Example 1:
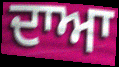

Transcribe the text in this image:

ਦਾਆ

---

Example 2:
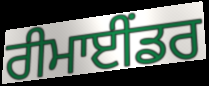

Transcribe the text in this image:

ਰੀਮਾਈਂਡਰ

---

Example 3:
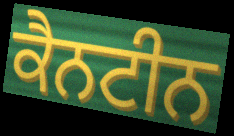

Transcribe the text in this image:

ਕੈਨਟੀਨ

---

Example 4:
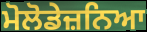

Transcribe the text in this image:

ਮੋਲੋਡੇਜ਼ਨਿਆ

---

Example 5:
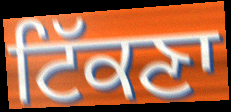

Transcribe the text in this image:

ਟਿੱਕਣਾ